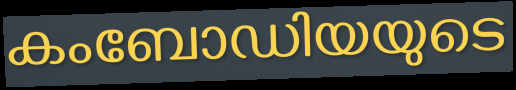
കംബോഡിയയുടെ